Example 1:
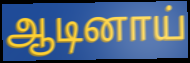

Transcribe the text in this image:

ஆடினாய்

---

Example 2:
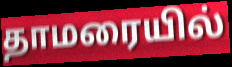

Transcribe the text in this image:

தாமரையில்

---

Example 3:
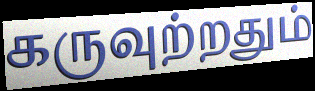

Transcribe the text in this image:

கருவுற்றதும்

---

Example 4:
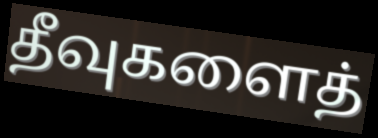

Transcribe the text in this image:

தீவுகளைத்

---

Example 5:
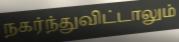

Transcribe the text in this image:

நகர்ந்துவிட்டாலும்